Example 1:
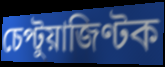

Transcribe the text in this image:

চেপ্টুয়াজিণ্টক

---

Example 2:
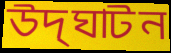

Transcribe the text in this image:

উদ্‌ঘাটন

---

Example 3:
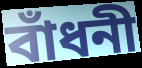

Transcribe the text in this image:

বাঁধনী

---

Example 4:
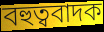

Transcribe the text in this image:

বহুত্ববাদক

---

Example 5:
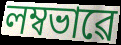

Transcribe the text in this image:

লম্বভাৱে